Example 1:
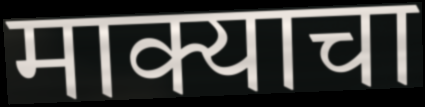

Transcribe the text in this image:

माक्याचा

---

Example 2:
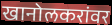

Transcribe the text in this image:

खानोलकरांवर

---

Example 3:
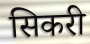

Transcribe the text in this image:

सिकरी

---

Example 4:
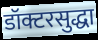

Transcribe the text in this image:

डॉक्टरसुद्धा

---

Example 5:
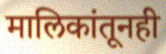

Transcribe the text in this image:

मालिकांतूनही